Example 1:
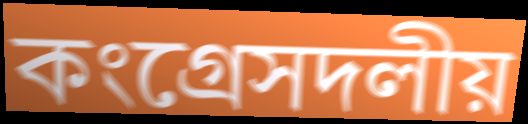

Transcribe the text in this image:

কংগ্রেসদলীয়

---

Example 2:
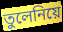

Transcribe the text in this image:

তুলেনিয়ে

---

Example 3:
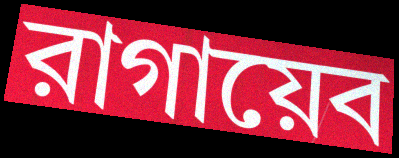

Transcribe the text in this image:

রাগায়েব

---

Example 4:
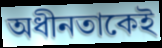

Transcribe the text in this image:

অধীনতাকেই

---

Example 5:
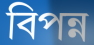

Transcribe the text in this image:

বিপন্ন